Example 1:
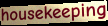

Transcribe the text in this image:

housekeeping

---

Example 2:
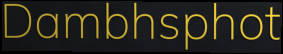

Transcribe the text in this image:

Dambhsphot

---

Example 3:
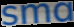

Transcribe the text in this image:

sma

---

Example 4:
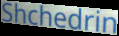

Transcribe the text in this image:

Shchedrin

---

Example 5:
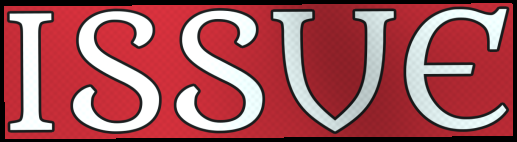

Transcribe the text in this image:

ISSUE